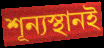
শূন্যস্থানই